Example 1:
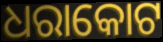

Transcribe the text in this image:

ଧରାକୋଟ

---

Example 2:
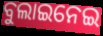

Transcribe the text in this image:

ବୁଲାଇନେଇ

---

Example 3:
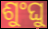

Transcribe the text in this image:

ଶୁଂଘୁ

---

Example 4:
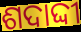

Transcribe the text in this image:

ଶଦାଦ୍ଦୀ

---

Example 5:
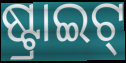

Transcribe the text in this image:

ଷ୍ଟ୍ରାଇଟ୍